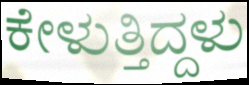
ಕೇಳುತ್ತಿದ್ದಳು